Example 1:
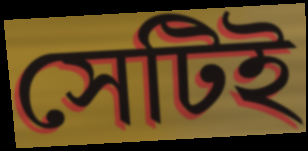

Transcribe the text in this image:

সেটিই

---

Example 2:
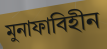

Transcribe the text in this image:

মুনাফাবিহীন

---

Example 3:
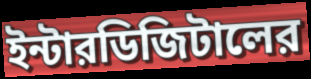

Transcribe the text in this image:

ইন্টারডিজিটালের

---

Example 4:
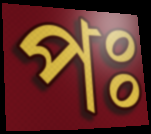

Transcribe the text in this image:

পঃ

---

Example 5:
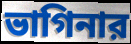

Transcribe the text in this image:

ভাগিনার